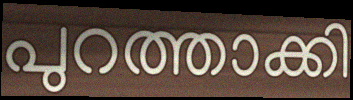
പുറത്താക്കി